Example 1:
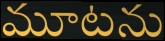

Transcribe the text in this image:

మూటను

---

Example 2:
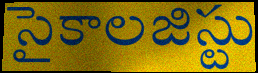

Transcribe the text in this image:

సైకాలజిస్టు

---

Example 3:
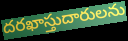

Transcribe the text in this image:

దరఖాస్తుదారులను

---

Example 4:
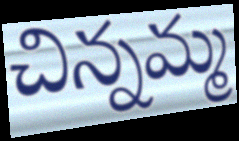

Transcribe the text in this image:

చిన్నమ్మ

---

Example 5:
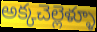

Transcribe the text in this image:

అక్కచెల్లెళ్ళూ